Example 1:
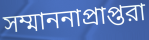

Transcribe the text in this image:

সম্মাননাপ্রাপ্তরা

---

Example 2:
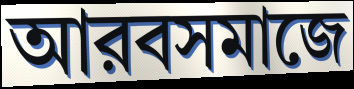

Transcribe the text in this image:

আরবসমাজে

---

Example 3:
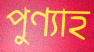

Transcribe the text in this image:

পুণ্যাহ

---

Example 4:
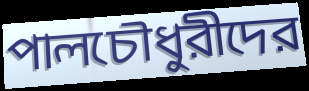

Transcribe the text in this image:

পালচৌধুরীদের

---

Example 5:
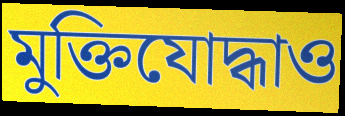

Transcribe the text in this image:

মুক্তিযোদ্ধাও